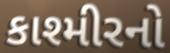
કાશ્મીરનો